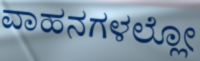
ವಾಹನಗಳಲ್ಲೋ